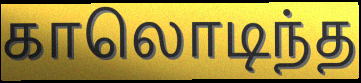
காலொடிந்த